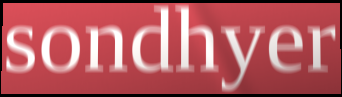
sondhyer